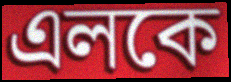
এলকে